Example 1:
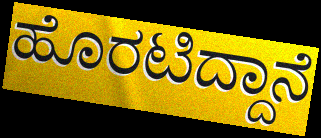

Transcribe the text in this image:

ಹೊರಟಿದ್ದಾನೆ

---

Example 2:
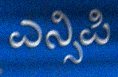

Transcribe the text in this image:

ಎನ್ಸಿಪಿ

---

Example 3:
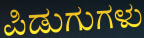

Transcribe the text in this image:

ಪಿಡುಗುಗಳು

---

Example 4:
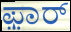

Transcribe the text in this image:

ಫ಼ಾರ್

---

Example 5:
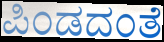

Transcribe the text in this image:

ಪಿಂಡದಂತೆ